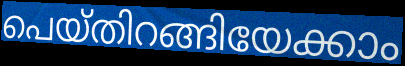
പെയ്തിറങ്ങിയേക്കാം